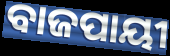
ବାଜପାୟୀ